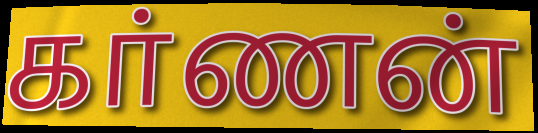
கர்ணன்